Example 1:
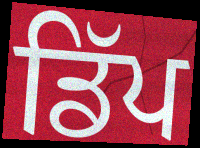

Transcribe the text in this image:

ਡਿੱਪ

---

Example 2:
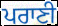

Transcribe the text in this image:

ਪਰਾਣੀ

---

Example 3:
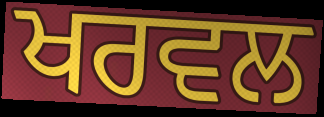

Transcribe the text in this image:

ਖਰਵਲ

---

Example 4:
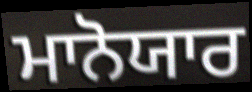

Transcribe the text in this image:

ਮਾਨੋਯਾਰ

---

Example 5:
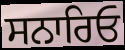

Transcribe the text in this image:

ਸਨਾਰਿਓ